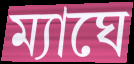
ম্যাঘে